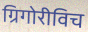
ग्रिगोरीविच